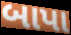
બાપા